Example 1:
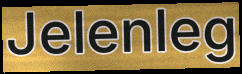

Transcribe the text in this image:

Jelenleg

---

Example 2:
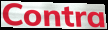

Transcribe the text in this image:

Contra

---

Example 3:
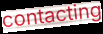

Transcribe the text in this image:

contacting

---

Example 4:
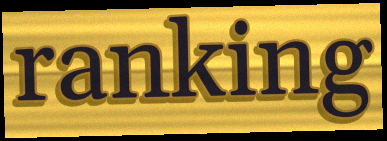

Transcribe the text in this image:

ranking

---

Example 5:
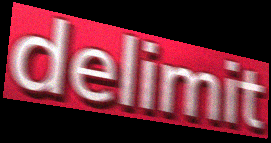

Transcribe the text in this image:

delimit